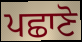
ਪਛਾਣੋ